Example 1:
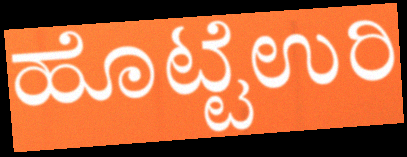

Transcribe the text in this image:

ಹೊಟ್ಟೆಉರಿ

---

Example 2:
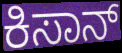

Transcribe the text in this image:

ಕಿಸಾನ್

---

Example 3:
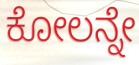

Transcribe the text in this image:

ಕೋಲನ್ನೇ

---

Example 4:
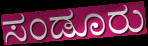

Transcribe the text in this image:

ಸಂಡೂರು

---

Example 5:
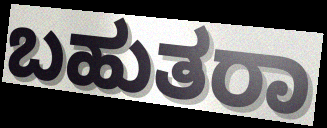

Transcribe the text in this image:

ಬಹುತರಾ